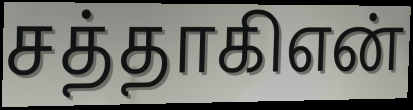
சத்தாகிஎன்